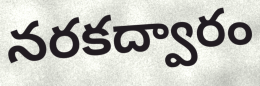
నరకద్వారం